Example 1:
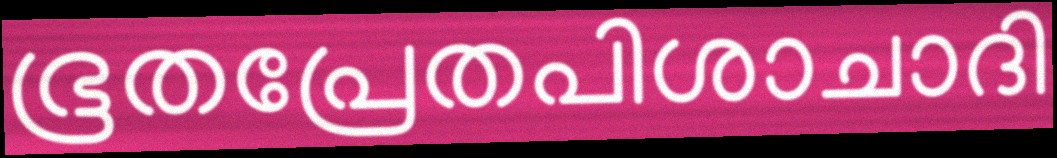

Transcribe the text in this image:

ഭൂതപ്രേതപിശാചാദി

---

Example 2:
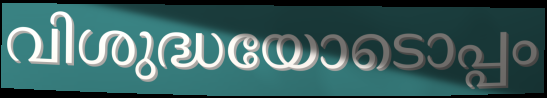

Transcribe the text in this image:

വിശുദ്ധയോടൊപ്പം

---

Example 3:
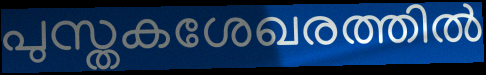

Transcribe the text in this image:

പുസ്തകശേഖരത്തിൽ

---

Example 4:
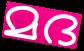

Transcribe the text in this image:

മദ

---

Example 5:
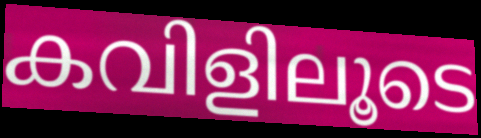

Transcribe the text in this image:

കവിളിലൂടെ